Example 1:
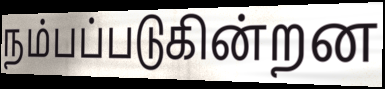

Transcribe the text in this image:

நம்பப்படுகின்றன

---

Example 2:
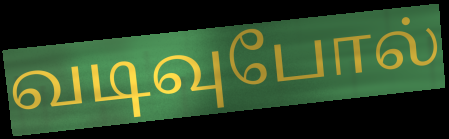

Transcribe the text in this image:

வடிவுபோல்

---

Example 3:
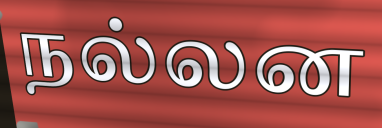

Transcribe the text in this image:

நல்லன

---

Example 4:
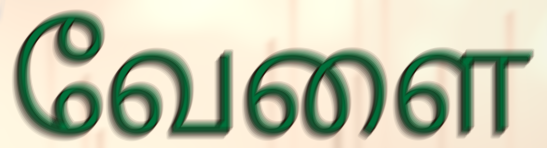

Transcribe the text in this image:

வேளை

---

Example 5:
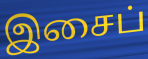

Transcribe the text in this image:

இசைப்